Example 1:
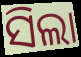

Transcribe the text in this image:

ସିଲା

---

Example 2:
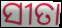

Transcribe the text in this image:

ସୀତା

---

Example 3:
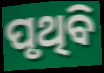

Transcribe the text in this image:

ପୃଥିବି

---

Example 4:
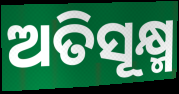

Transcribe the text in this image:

ଅତିସୂକ୍ଷ୍ମ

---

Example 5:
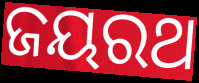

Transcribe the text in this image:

ଜୟରଥ